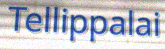
Tellippalai